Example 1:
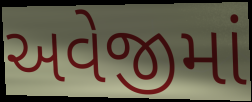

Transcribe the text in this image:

અવેજીમાં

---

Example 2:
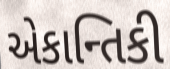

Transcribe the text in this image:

એકાન્તિકી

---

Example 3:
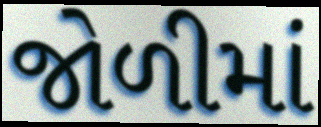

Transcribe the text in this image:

જોળીમાં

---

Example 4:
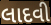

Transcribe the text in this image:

લાદવી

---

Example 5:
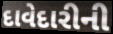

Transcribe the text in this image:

દાવેદારીની